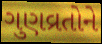
ગુણવ્રતોને